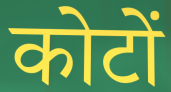
कोटों